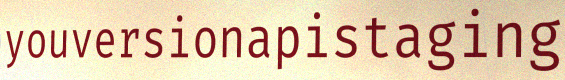
youversionapistaging